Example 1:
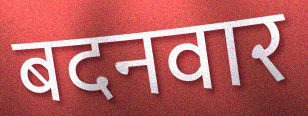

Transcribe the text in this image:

बदनवार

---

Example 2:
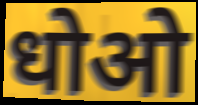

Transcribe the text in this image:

धोओ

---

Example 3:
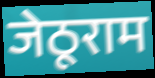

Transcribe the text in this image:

जेठूराम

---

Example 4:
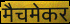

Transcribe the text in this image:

मैचमेकर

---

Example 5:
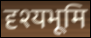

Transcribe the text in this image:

दृश्यभूमि